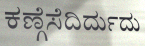
ಕಣ್ಗೆಸೆದಿರ್ದುದು